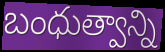
బంధుత్వాన్ని